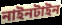
নাইনটাইন